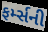
ફર્મ્સની